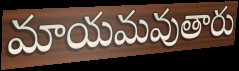
మాయమవుతారు